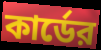
কার্ডের